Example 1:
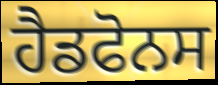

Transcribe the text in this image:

ਹੈਡਫੋਨਸ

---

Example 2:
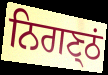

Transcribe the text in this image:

ਨਿਗਣ੍ਠਂ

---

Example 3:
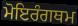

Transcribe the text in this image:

ਮੋਇਰੰਗਥਮ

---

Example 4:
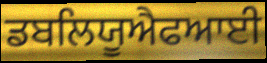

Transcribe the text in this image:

ਡਬਲਿਯੂਐਫਆਈ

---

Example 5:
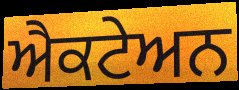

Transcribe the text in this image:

ਐਕਟੇਅਨ